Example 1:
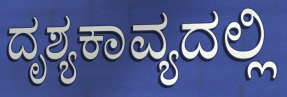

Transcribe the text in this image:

ದೃಶ್ಯಕಾವ್ಯದಲ್ಲಿ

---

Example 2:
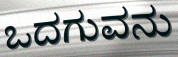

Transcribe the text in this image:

ಒದಗುವನು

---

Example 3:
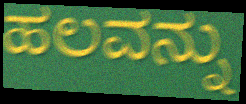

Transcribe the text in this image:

ಹಲವನ್ನು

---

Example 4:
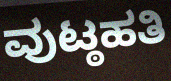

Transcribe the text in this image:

ವುಟ್ಠಹತಿ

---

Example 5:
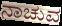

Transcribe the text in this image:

ನಾಚುವ